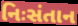
નિઃસંતાન